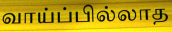
வாய்ப்பில்லாத